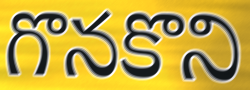
గొనకొని